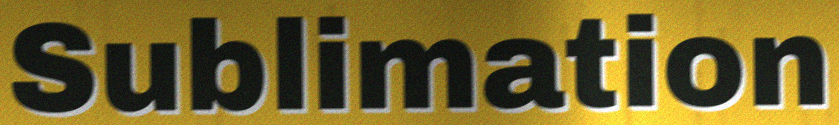
Sublimation